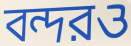
বন্দরও